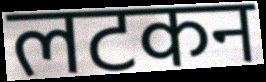
लटकन